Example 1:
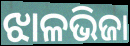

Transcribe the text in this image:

ଝାଳଭିଜା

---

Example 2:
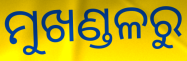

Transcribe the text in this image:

ମୁଖଣ୍ଡଳରୁ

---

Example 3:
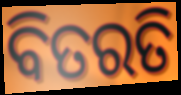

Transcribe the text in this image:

ବିତରତି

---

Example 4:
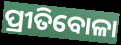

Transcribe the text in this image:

ପ୍ରୀତିବୋଳା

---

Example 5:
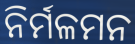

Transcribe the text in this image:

ନିର୍ମଳମନ